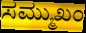
ಸಮ್ಮುಖಂ